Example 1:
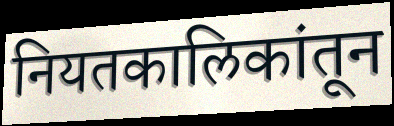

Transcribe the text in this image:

नियतकालिकांतून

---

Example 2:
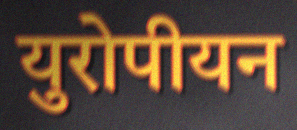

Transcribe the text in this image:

युरोपीयन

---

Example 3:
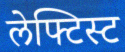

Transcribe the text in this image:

लेफ्टिस्ट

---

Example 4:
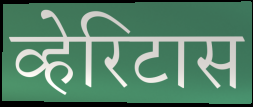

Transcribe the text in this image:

व्हेरिटास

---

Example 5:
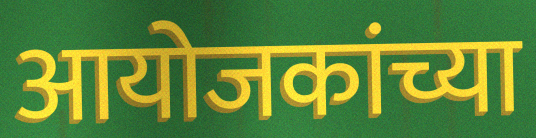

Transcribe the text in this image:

आयोजकांच्या